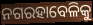
ନଗରହାବେଳିକୁ